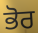
ਭੋਰ